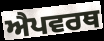
ਐਪਵਰਥ